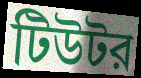
টিউটর